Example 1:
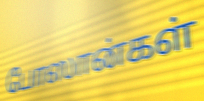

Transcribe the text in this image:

போஸான்கள்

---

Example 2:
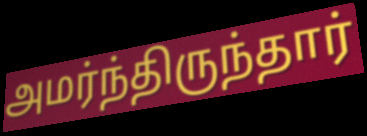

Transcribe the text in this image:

அமர்ந்திருந்தார்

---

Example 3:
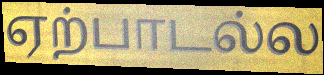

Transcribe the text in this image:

ஏற்பாடல்ல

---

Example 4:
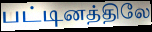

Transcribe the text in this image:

பட்டினத்திலே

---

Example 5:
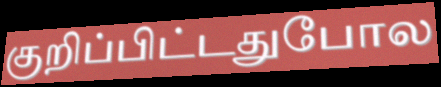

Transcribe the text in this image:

குறிப்பிட்டதுபோல